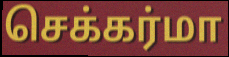
செக்கர்மா